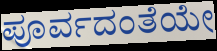
ಪೂರ್ವದಂತೆಯೇ